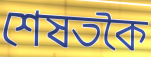
শেষতকৈ